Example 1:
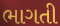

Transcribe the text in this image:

ભાગતી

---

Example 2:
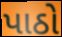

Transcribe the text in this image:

પાઠો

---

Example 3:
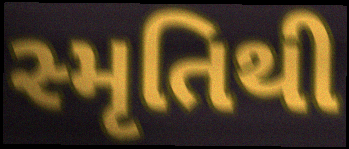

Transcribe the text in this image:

સ્મૃતિથી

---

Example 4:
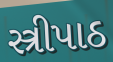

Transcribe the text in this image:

સ્ત્રીપાઠ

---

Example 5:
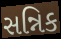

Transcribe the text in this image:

સન્નિક